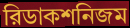
রিডাকশনিজম